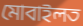
মোবাইলত